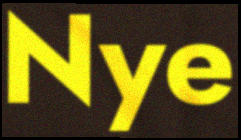
Nye